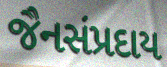
જૈનસંપ્રદાય